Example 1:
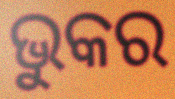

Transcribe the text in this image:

ଭୁକର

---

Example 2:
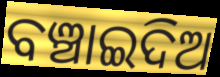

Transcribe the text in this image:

ବଞ୍ଚାଇଦିଅ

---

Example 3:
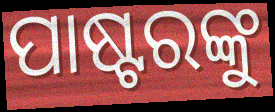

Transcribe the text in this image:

ପାଷ୍ଟରଙ୍କୁ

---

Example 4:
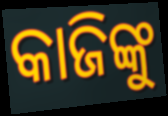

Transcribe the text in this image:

କାଜିଙ୍କୁ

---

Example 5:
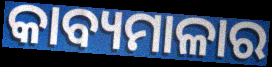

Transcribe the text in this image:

କାବ୍ୟମାଳାର